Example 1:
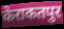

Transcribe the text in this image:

केराकतपुर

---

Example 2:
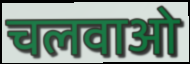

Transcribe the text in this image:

चलवाओ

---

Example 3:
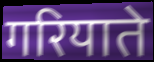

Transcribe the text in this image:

गरियाते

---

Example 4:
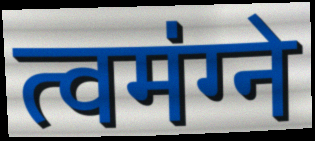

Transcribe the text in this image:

त्वम॑ग्ने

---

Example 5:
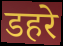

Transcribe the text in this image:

डहरे